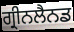
ਗ੍ਰੀਨਲੈਨਡ